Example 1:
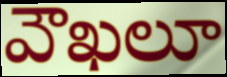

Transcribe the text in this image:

వౌఖలూ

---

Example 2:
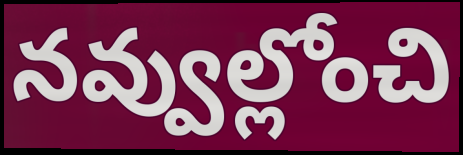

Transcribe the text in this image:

నవ్వుల్లోంచి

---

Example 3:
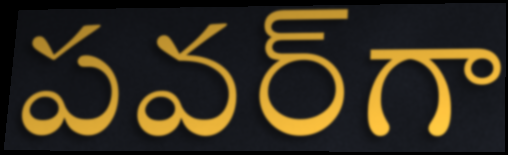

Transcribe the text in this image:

పవర్‌గా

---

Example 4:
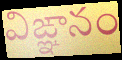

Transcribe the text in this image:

విఙ్ఞానం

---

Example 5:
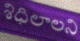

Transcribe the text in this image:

శిధిలాలని